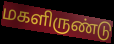
மகளிருண்டு